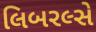
લિબરલ્સે